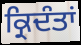
ਕ੍ਰਿਦੰਤਾਂ